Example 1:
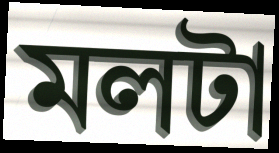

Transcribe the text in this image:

মলটা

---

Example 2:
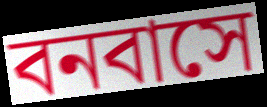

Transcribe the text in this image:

বনবাসে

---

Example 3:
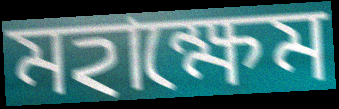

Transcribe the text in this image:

মহাক্ষেম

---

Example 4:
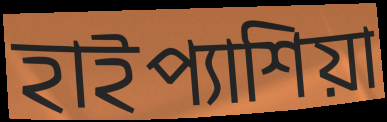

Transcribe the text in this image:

হাইপ্যাশিয়া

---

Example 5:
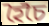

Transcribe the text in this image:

হৈচৈ